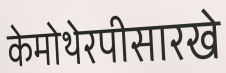
केमोथेरपीसारखे